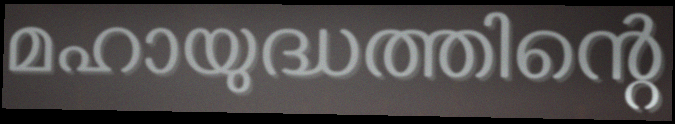
മഹായുദ്ധത്തിന്റെ